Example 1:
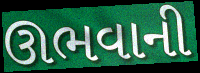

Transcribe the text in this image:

ઊભવાની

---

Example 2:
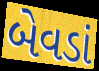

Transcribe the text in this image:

બેવડાં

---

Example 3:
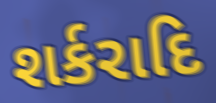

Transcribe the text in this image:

શર્કરાદિ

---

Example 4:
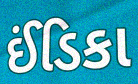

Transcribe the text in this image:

ઈંડિકા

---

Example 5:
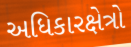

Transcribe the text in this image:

અધિકારક્ષેત્રો